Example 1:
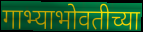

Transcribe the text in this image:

गाभ्याभोवतीच्या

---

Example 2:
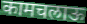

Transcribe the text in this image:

कामचलाऊ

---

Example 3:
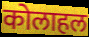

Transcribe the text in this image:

कोलाहल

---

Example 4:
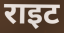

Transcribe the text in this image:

राइट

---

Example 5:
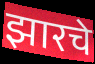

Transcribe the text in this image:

झारचे